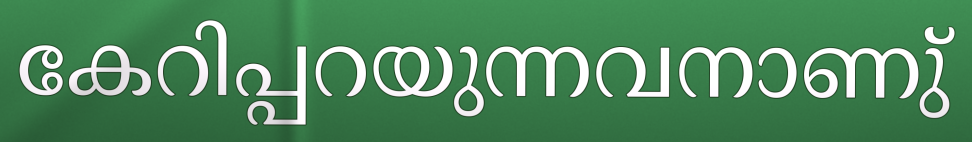
കേറിപ്പറയുന്നവനാണു്